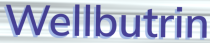
Wellbutrin